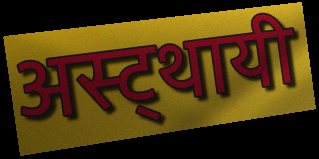
अस्ट्थायी